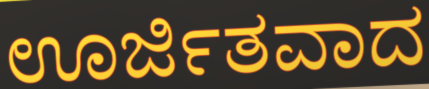
ಊರ್ಜಿತವಾದ